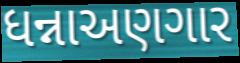
ધન્નાઅણગાર